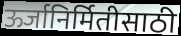
ऊर्जानिर्मितीसाठी